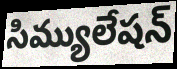
సిమ్యులేషన్